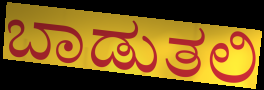
ಬಾಡುತಲಿ